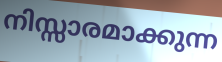
നിസ്സാരമാക്കുന്ന